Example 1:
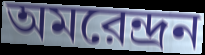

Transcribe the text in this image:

অমরেন্দ্রন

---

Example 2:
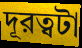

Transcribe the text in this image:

দূরত্বটা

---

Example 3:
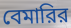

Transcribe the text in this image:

বেমারির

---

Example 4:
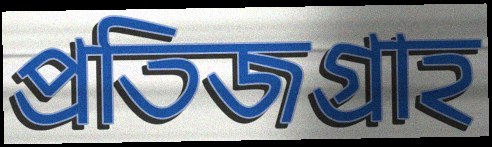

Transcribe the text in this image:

প্রতিজগ্রাহ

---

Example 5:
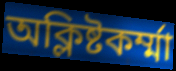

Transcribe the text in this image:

অক্লিষ্টকর্ম্মা